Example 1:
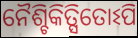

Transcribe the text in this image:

ନୈଶ୍ଚିକିତ୍ସିତୋଽପି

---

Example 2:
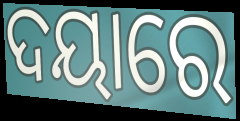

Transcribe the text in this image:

ଦୟାରେ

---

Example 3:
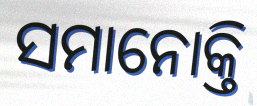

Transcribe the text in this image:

ସମାନୋକ୍ତି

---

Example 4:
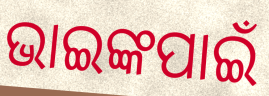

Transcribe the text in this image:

ଭାଇଙ୍କପାଇଁ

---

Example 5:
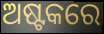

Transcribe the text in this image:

ଅଷ୍ଟକରେ